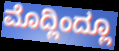
ಮೊದ್ಲಿಂದ್ಲೂ